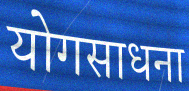
योगसाधना